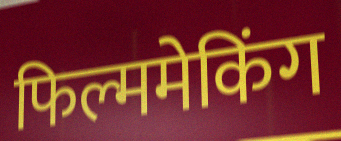
फिल्‍ममेकिंग